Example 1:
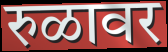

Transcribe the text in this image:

रुळावर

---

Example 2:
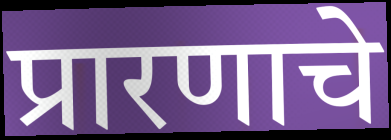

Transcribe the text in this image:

प्रारणाचे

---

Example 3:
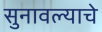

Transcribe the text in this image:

सुनावल्याचे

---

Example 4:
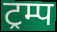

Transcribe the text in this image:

ट्रम्‍प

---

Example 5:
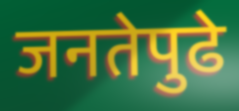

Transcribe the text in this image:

जनतेपुढे